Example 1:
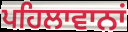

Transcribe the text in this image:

ਪਹਿਲਾਵਾਨਾਂ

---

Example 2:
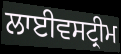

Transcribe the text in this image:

ਲਾਈਵਸਟ੍ਰੀਮ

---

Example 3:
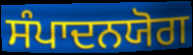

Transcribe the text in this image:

ਸੰਪਾਦਨਯੋਗ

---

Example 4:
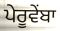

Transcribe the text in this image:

ਪੇਰੂਵੇਂਬਾ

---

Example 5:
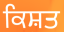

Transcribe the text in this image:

ਕਿਸ਼ਤ